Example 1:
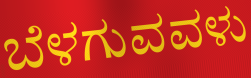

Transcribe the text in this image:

ಬೆಳಗುವವಳು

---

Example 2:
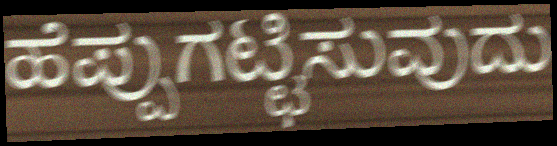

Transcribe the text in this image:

ಹೆಪ್ಪುಗಟ್ಟಿಸುವುದು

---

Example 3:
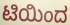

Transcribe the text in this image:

ಟಿಯಿಂದ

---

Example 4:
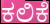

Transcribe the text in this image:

ಕಲಿಕೆ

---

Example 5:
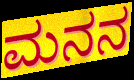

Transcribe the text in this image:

ಮನನ